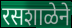
रसशाळेने